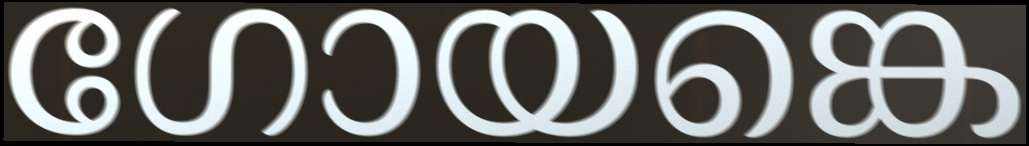
ഗോയങ്കെ